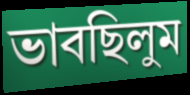
ভাবছিলুম